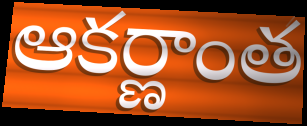
ఆకర్ణాంత